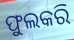
ଫୁଲକରି